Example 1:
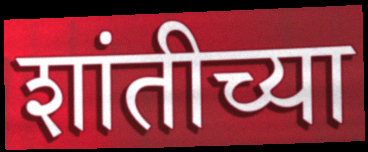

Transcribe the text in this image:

शांतीच्या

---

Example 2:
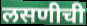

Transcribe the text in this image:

लसणीची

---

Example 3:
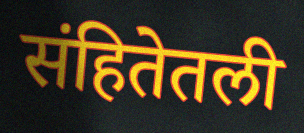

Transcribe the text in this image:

संहितेतली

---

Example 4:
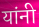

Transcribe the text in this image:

यांनी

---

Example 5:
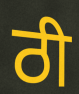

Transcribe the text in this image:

ठी